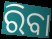
ରିବା